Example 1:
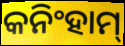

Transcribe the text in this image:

କନିଂହାମ୍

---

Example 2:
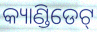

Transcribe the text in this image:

କ୍ୟାଣ୍ଡିଡେଟ୍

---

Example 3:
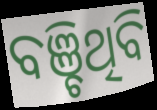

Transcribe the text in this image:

ବଞ୍ଚିଥିବି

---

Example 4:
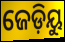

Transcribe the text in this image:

ଜେଡ଼ିୟୁ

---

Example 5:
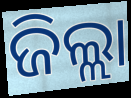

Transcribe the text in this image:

ଜିଲ୍ଲା